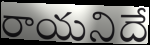
రాయనిదే